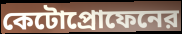
কেটোপ্রোফেনের